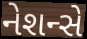
નેશન્સે